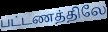
பட்டணத்திலே